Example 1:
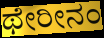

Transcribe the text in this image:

ಥೇರೀನಂ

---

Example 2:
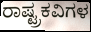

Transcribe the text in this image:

ರಾಷ್ಟ್ರಕವಿಗಳ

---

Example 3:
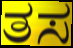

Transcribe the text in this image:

ತಸ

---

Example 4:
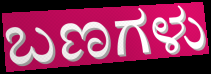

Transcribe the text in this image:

ಬಣಗಳು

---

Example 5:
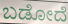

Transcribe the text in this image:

ಬಡೋದೆ